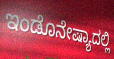
ಇಂಡೊನೇಷ್ಯಾದಲ್ಲಿ